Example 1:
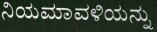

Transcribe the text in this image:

ನಿಯಮಾವಳಿಯನ್ನು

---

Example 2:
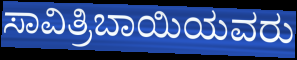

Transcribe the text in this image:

ಸಾವಿತ್ರಿಬಾಯಿಯವರು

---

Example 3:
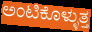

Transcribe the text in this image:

ಅಂಟಿಕೊಳ್ಳುತ್ತ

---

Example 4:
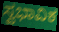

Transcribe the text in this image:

ಸ್ವಭಾವಿಕ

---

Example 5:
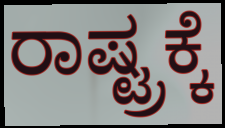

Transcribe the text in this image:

ರಾಷ್ಟ್ರಕ್ಕೆ